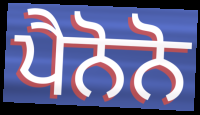
ਪੈਨੋਨੋ